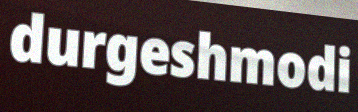
durgeshmodi